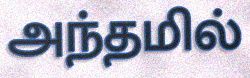
அந்தமில்